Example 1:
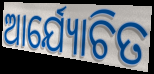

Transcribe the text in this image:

ଆର୍ଯ୍ୟୋଚିତ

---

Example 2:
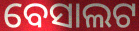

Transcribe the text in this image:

ବେସାଲଟ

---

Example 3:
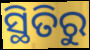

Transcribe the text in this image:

ସ୍ଥିତିରୁ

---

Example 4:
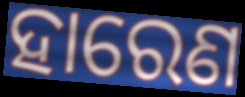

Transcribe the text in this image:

ହାରେଣ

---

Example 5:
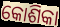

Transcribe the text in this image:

କୋଶିକା